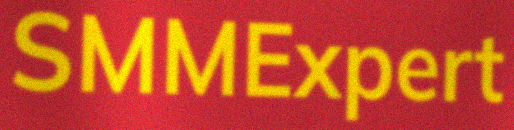
SMMExpert